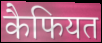
कैफियत